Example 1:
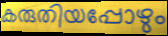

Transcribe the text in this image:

കരുതിയപ്പോഴും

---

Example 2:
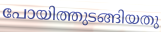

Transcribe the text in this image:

പോയിത്തുടങ്ങിയതു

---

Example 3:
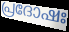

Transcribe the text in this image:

പ്രദോഷഃ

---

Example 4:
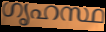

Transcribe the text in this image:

ഗൃഹസ്ഥ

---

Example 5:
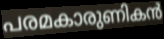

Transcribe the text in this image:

പരമകാരുണികൻ